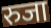
रुजा